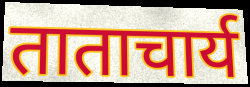
ताताचार्य